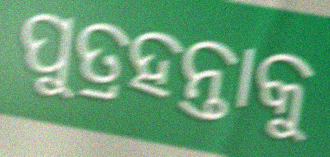
ପୁତ୍ରହନ୍ତାକୁ